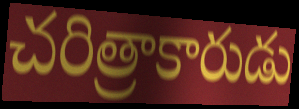
చరిత్రాకారుడు